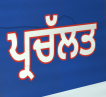
ਪ੍ਰਚੱਲਤ